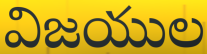
విజయుల